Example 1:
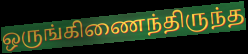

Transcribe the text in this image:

ஒருங்கிணைந்திருந்த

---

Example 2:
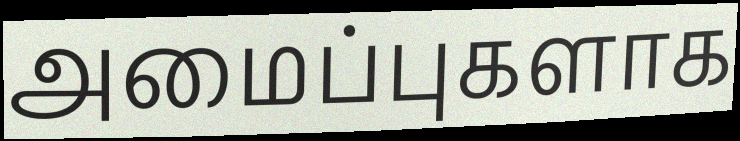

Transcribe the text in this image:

அமைப்புகளாக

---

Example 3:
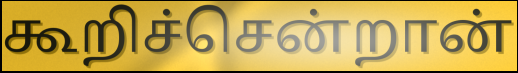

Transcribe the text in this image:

கூறிச்சென்றான்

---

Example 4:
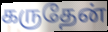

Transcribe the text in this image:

கருதேன்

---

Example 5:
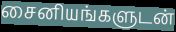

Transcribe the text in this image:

சைனியங்களுடன்